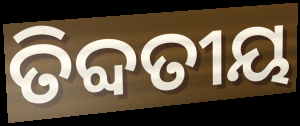
ତିବ୍ଦତୀୟ